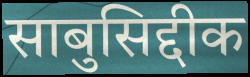
साबुसिद्दीक